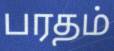
பரதம்